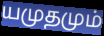
யமுதமும்